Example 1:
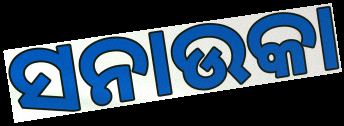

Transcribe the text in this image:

ସନାଉକା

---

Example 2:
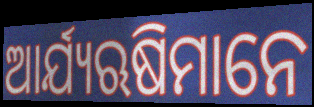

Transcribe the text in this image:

ଆର୍ଯ୍ୟଋଷିମାନେ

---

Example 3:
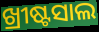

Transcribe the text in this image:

ଖ୍ରୀଷ୍ଟସାଲ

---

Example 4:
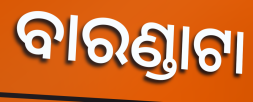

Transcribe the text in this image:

ବାରଣ୍ଡାଟା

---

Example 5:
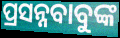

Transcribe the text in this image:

ପ୍ରସନ୍ନବାବୁଙ୍କ